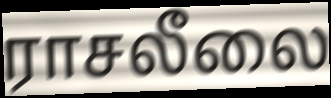
ராசலீலை